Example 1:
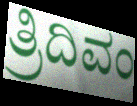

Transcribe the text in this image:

ತ್ರಿದಿವಂ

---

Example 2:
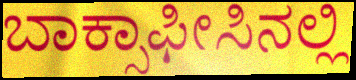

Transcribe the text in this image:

ಬಾಕ್ಸಾಫೀಸಿನಲ್ಲಿ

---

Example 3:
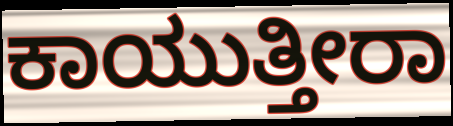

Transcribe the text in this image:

ಕಾಯುತ್ತೀರಾ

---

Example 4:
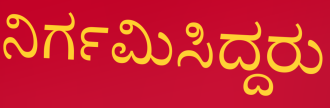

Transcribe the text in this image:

ನಿರ್ಗಮಿಸಿದ್ದರು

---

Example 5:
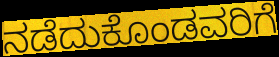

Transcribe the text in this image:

ನಡೆದುಕೊಂಡವರಿಗೆ